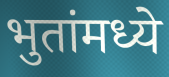
भुतांमध्ये